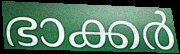
ഭാക്കർ